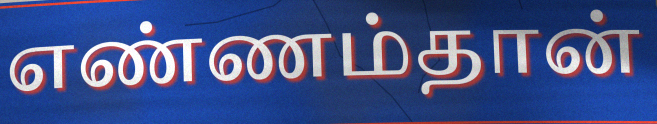
எண்ணம்தான்